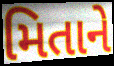
મિતાને